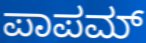
ಪಾಪಮ್